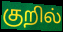
குறில்